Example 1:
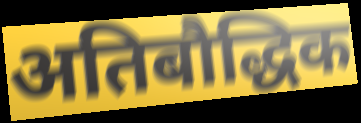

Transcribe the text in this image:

अतिबौद्धिक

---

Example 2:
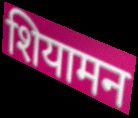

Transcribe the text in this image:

शियामन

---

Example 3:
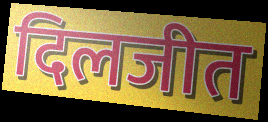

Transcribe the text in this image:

दिलजीत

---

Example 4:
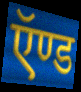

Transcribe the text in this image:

ऍण्ड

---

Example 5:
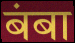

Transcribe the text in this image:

बंबा